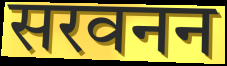
सरवनन